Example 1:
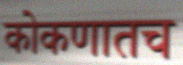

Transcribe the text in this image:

कोकणातच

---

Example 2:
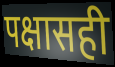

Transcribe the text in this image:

पक्षासही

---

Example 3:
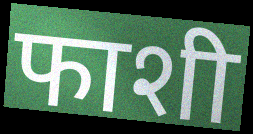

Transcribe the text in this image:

फाशी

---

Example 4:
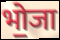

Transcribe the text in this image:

भो॒जा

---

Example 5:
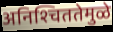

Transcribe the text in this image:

अनिश्चिततेमुळे